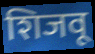
शिजवू